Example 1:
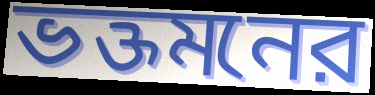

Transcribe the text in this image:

ভক্তমনের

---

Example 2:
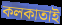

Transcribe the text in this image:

কলকাতাই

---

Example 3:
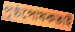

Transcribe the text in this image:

পৃষ্ঠপোষকতাই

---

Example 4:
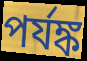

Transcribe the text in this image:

পর্যঙ্ক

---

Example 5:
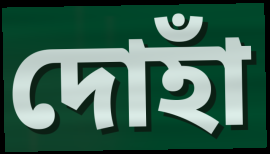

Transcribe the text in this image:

দোহাঁ